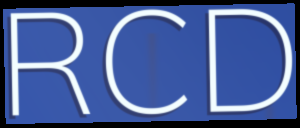
RCD